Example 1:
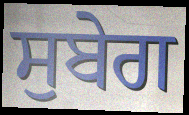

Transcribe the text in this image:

ਸੁਬੇਗ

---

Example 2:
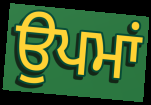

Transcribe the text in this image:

ਉਪਮਾਂ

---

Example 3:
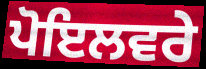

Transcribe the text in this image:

ਪੋਇਲਵਰੇ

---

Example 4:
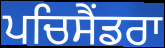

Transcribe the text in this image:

ਪਚਿਸੈਂਡਰਾ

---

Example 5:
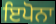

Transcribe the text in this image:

ਇਪੋਨਾ